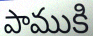
పాముకి